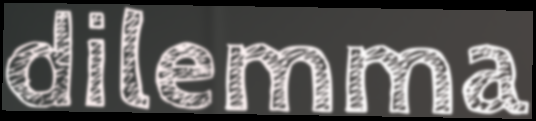
dilemma